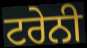
ਟਰੇਨੀ